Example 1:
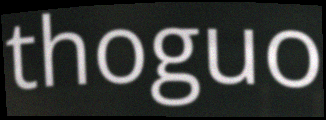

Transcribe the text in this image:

thoguo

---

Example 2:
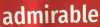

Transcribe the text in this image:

admirable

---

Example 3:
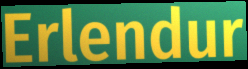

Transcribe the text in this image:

Erlendur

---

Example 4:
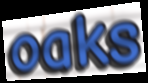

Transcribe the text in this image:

oaks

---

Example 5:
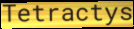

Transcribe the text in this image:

Tetractys